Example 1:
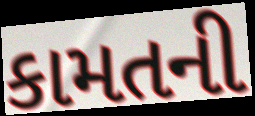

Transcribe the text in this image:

કામતની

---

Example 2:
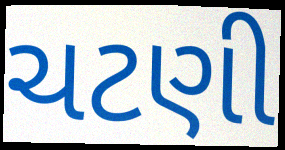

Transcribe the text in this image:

ચટણી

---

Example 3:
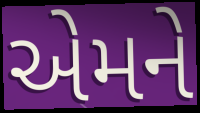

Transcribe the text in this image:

એમને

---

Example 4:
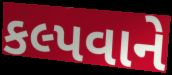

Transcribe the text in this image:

કલ્પવાને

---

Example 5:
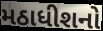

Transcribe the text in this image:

મઠાધીશનો